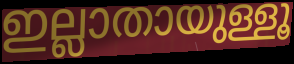
ഇല്ലാതായുള്ളൂ